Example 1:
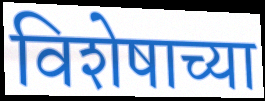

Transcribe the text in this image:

विशेषाच्या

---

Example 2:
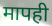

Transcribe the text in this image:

मापही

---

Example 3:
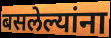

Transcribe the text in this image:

बसलेल्यांना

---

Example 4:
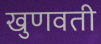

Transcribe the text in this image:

खुणवती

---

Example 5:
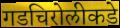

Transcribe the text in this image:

गडचिरोलीकडे